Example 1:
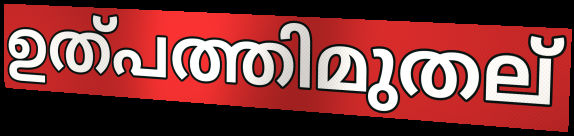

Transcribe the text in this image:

ഉത്പത്തിമുതല്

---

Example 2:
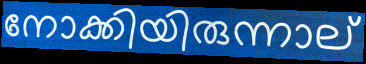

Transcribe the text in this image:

നോക്കിയിരുന്നാല്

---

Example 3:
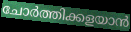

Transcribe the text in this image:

ചോർത്തിക്കളയാൻ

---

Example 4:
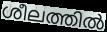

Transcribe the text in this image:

ശീലത്തിൽ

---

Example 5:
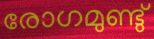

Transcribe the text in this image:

രോഗമുണ്ടു്